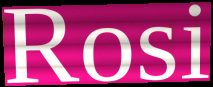
Rosi